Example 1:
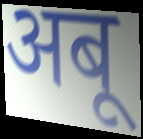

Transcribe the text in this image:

अबू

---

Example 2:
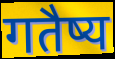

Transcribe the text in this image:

गतैष्य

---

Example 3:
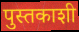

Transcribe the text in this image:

पुस्तकाशी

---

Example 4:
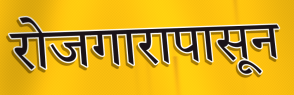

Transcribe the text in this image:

रोजगारापासून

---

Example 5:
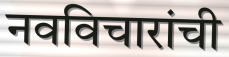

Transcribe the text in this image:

नवविचारांची